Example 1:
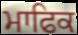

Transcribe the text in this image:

ਮਾਫਿਕ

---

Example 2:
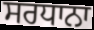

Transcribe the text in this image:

ਸਰਧਾਨਾ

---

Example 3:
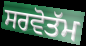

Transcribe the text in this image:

ਸਰਵੋਤੱਮ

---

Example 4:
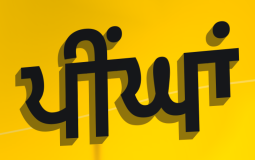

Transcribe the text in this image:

ਪੀਂਘਾਂ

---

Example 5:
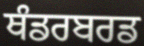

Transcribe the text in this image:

ਥੰਡਰਬਰਡ